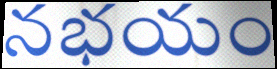
నభయం